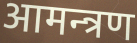
आमन्त्रण